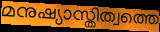
മനുഷ്യാസ്തിത്വത്തെ